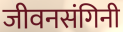
जीवनसंगिनी